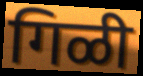
गिळी